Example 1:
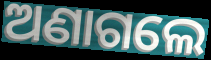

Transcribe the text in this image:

ଅଣାଗଲେ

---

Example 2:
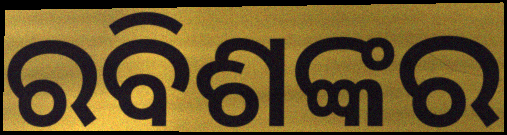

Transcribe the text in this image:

ରବିଶଙ୍କର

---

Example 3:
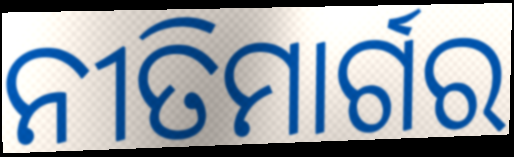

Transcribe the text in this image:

ନୀତିମାର୍ଗର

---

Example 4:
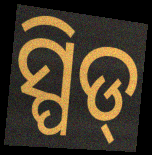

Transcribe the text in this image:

ସ୍ପିଡ୍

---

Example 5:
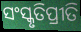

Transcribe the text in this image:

ସଂସ୍କୃତିପ୍ରୀତି